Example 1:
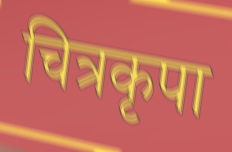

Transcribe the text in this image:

चित्रकृपा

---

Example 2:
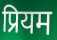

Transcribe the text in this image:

प्रियम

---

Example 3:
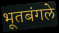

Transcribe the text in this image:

भूतबंगले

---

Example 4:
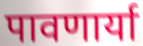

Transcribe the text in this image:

पावणार्या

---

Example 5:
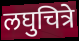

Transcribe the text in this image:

लघुचित्रे